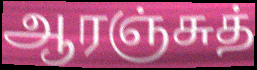
ஆரஞ்சுத்